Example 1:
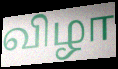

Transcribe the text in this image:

விழா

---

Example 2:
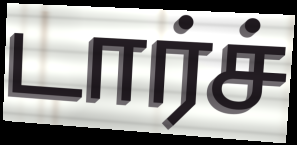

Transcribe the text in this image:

டார்ச்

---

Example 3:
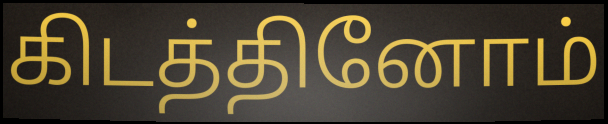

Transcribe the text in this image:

கிடத்தினோம்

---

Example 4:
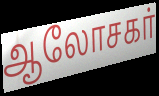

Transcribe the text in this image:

ஆலோசகர்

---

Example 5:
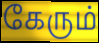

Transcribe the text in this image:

கேரும்